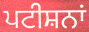
ਪਟੀਸ਼ਨਾਂ